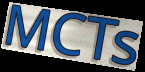
MCTs